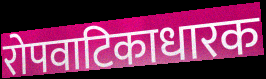
रोपवाटिकाधारक